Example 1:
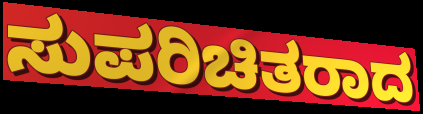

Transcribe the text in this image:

ಸುಪರಿಚಿತರಾದ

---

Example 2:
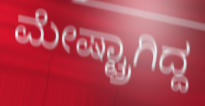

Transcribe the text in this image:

ಮೇಷ್ಟ್ರಾಗಿದ್ದ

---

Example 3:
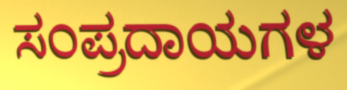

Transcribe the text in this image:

ಸಂಪ್ರದಾಯಗಳ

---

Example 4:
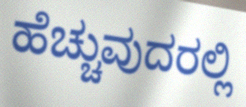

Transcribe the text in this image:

ಹೆಚ್ಚುವುದರಲ್ಲಿ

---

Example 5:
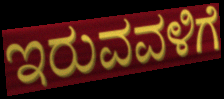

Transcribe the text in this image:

ಇರುವವಳಿಗೆ